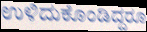
ಉಳಿದುಕೊಂಡಿದ್ದರೂ